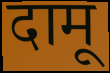
दामू